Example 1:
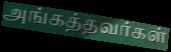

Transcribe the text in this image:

அங்கத்தவர்கள்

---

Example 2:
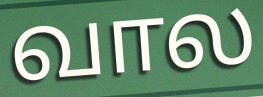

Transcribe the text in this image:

வால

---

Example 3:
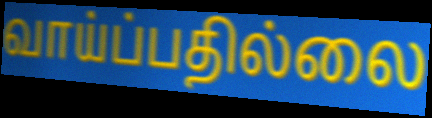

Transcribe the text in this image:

வாய்ப்பதில்லை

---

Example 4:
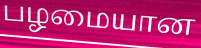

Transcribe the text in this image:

பழமையான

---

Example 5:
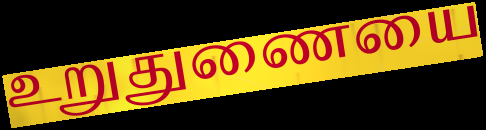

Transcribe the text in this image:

உறுதுணையை